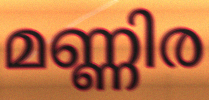
മണ്ണിര